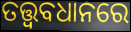
ତତ୍ତ୍ଵବଧାନରେ